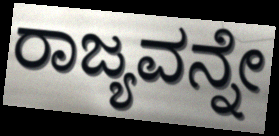
ರಾಜ್ಯವನ್ನೇ